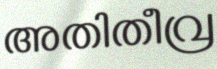
അതിതീവ്ര